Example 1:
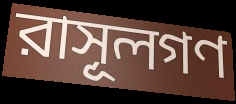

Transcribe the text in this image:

রাসূলগণ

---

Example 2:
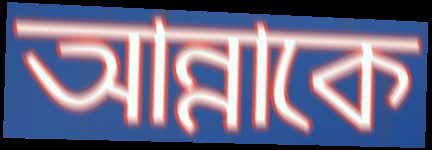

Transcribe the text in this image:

আন্নাকে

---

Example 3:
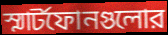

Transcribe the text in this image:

স্মার্টফোনগুলোর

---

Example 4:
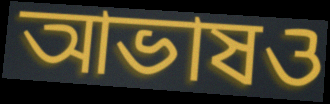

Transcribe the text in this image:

আভাষও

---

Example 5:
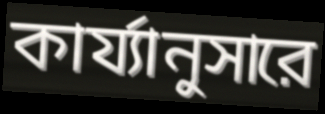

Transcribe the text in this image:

কার্য্যানুসারে